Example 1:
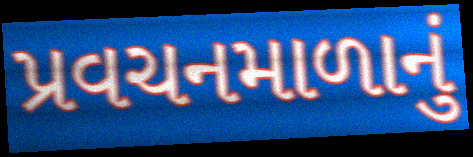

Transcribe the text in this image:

પ્રવચનમાળાનું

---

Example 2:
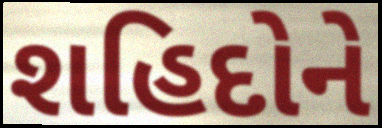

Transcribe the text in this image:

શહિદોને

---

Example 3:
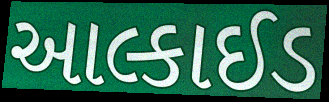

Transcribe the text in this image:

આલ્કાઈડ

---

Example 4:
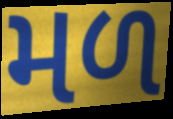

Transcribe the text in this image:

મળ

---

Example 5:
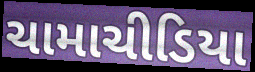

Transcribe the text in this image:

ચામાચીડિયા